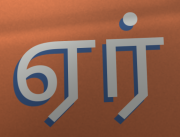
ஏர்